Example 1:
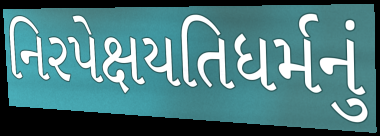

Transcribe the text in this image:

નિરપેક્ષયતિધર્મનું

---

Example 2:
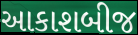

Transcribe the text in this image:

આકાશબીજ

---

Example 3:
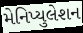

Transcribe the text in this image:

મેનિપ્યુલેશન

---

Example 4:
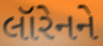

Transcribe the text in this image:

લૉરેનને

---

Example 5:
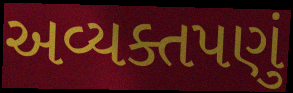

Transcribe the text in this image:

અવ્યક્તપણું